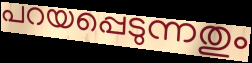
പറയപ്പെടുന്നതും